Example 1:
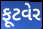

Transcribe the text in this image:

ફૂટવેર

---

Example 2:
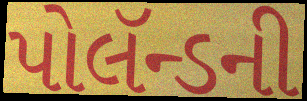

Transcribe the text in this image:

પોલૅન્ડની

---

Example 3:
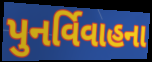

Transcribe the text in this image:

પુનર્વિવાહના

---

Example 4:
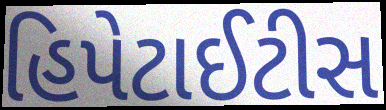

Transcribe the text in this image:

હિપેટાઈટીસ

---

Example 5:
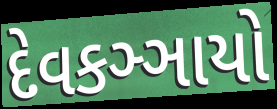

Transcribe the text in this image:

દેવકઞ્ઞાયો